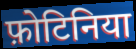
फ़ोटिनिया